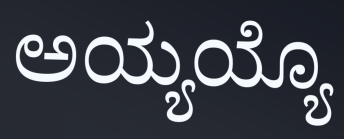
ಅಯ್ಯಯ್ಯೊ